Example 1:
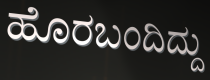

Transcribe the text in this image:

ಹೊರಬಂದಿದ್ದು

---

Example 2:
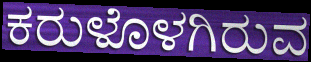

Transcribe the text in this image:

ಕರುಳೊಳಗಿರುವ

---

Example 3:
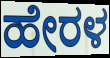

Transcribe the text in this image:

ಹೇರಳ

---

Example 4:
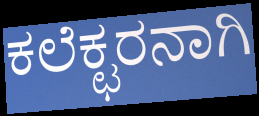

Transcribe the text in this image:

ಕಲೆಕ್ಟರನಾಗಿ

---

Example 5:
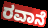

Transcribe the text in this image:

ರವಾನೆ